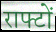
राफ्टों